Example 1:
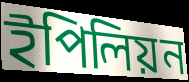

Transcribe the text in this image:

ইপিলিয়ন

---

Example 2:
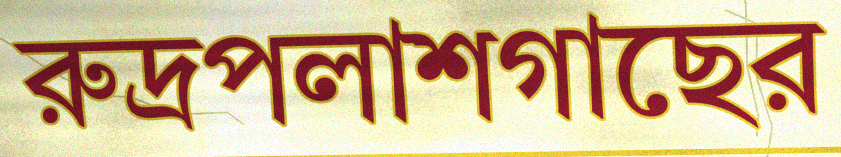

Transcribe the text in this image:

রুদ্রপলাশগাছের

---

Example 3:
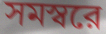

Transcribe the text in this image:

সমস্বরে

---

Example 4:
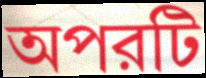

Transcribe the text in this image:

অপরটি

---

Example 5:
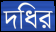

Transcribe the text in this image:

দধির